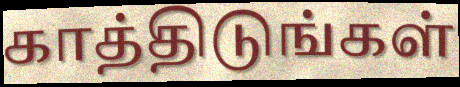
காத்திடுங்கள்